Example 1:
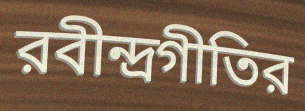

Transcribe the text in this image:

রবীন্দ্রগীতির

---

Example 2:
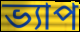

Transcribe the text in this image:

ভ্যাপ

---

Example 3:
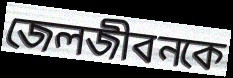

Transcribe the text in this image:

জেলজীবনকে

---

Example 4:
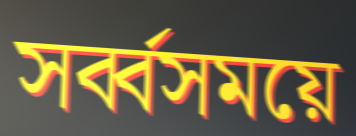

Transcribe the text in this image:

সর্ব্বসময়ে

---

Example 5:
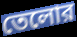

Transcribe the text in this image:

তেলোর